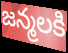
జన్మలకి